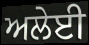
ਅਲੇਈ